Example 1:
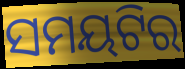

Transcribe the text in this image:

ସମୟଟିର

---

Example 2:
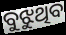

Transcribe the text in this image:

ବୁଝୁଥିବ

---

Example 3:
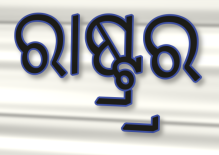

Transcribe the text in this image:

ରାଷ୍ଟ୍ର୍ରର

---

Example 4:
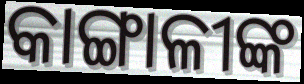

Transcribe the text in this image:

କାଙ୍ଗାଳୀଙ୍କ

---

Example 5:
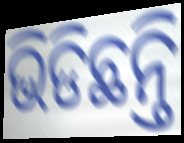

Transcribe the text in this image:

ଭିଡିଛନ୍ତି